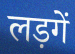
लड़गें